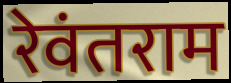
रेवंतराम